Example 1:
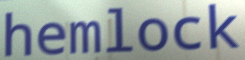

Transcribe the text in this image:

hemlock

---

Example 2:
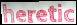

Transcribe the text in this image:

heretic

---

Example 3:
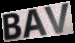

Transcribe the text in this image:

BAV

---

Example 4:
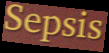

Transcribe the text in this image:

Sepsis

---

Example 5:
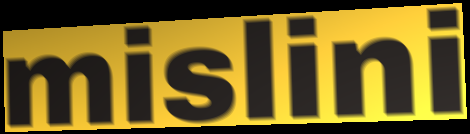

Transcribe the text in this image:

mislini